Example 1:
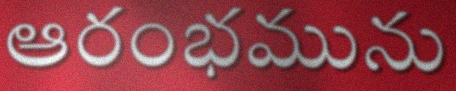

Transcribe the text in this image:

ఆరంభమును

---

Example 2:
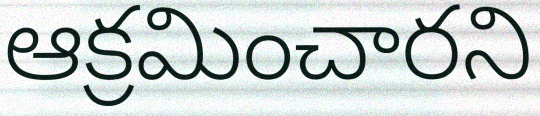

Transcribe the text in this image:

ఆక్రమించారని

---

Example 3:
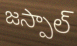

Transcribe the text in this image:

జస్పాల్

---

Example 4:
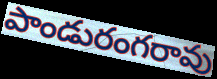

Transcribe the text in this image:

పాండురంగరావు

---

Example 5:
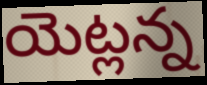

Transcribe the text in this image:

యెట్లన్న